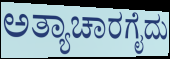
ಅತ್ಯಾಚಾರಗೈದು